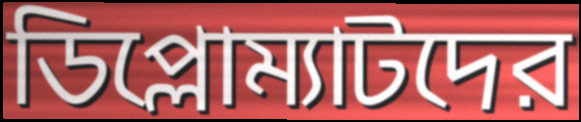
ডিপ্লোম্যাটদের